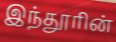
இந்தூரின்